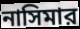
নাসিমার